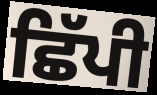
ਛਿੱਪੀ